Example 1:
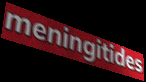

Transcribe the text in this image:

meningitides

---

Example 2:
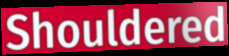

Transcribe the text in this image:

Shouldered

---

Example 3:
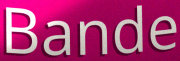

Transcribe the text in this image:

Bande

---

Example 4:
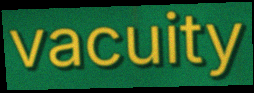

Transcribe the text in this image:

vacuity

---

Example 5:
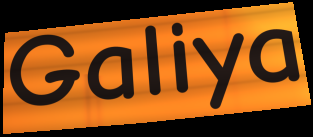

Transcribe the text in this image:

Galiya